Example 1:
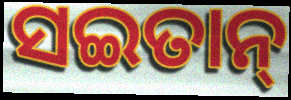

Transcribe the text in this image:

ସଇତାନ୍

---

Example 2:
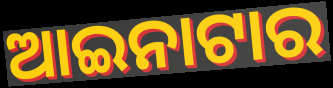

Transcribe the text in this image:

ଆଇନାଟାର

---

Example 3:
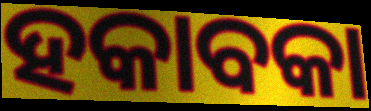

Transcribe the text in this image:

ହକାବକା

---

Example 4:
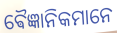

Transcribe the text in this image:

ଵୈଜ୍ଞାନିକମାନେ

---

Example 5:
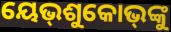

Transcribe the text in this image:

ୟେଭ୍‌ଶୁକୋଭ୍‌ଙ୍କୁ